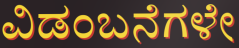
ವಿಡಂಬನೆಗಳೇ